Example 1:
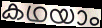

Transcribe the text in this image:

കഥയാം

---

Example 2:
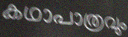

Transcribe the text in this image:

കഥാപാത്രവും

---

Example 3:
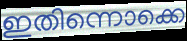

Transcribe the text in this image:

ഇതിന്നൊക്കെ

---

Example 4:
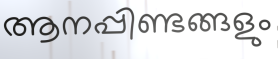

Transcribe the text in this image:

ആനപ്പിണ്ടങ്ങളും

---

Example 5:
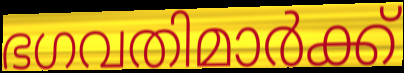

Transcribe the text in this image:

ഭഗവതിമാർക്ക്